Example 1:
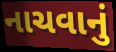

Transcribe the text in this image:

નાચવાનું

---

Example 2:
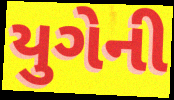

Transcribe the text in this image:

યુગેની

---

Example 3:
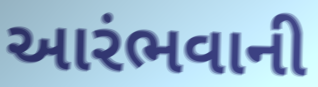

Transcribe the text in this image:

આરંભવાની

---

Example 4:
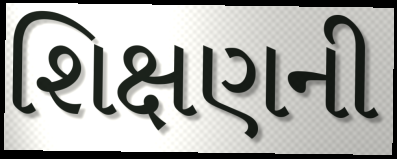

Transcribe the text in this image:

શિક્ષણની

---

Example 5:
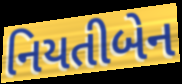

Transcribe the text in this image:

નિયતીબેન